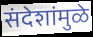
संदेशांमुळे